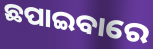
ଛପାଇବାରେ